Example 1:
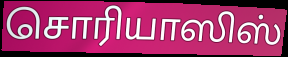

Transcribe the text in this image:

சொரியாஸிஸ்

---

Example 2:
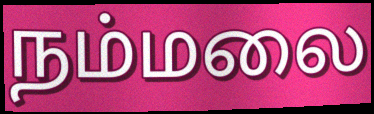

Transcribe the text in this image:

நம்மலை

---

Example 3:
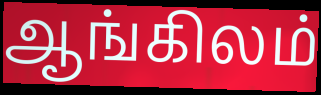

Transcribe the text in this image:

ஆங்கிலம்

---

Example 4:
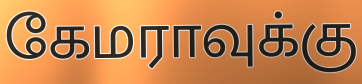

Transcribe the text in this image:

கேமராவுக்கு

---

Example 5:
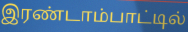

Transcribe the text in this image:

இரண்டாம்பாட்டில்